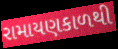
રામાયણકાળથી